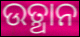
ଉତ୍ଥାନ